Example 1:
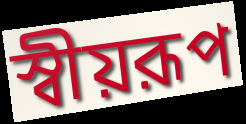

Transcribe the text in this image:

স্বীয়রূপ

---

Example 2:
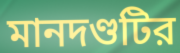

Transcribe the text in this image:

মানদণ্ডটির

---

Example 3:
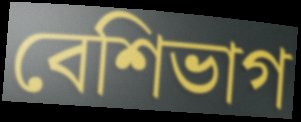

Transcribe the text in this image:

বেশিভাগ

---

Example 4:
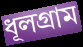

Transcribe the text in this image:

ধূলগ্রাম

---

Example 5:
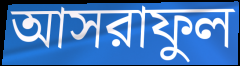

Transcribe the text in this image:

আসরাফুল